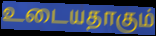
உடையதாகும்